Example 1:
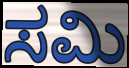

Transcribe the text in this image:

ಸಮಿ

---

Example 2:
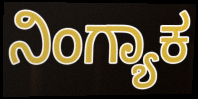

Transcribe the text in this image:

ನಿಂಗ್ಯಾಕ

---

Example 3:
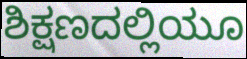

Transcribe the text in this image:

ಶಿಕ್ಷಣದಲ್ಲಿಯೂ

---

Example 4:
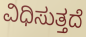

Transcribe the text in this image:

ವಿಧಿಸುತ್ತದೆ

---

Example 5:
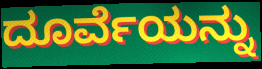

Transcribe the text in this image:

ದೂರ್ವೆಯನ್ನು